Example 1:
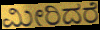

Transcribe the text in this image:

ಮೀರಿದರೆ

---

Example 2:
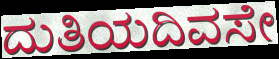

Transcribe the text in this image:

ದುತಿಯದಿವಸೇ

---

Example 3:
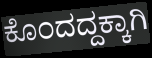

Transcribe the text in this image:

ಕೊಂದದ್ದಕ್ಕಾಗಿ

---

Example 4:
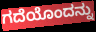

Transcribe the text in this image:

ಗದೆಯೊಂದನ್ನು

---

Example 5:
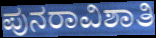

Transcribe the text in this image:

ಪುನರಾವಿಶಾತಿ